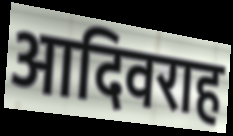
आदिवराह